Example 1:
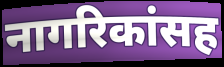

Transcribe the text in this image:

नागरिकांसह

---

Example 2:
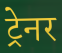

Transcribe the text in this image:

ट्रेनर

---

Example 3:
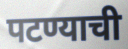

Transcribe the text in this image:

पटण्याची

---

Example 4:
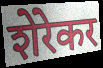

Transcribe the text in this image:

शेरेकर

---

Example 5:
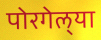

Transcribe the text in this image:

पोरगेल्या